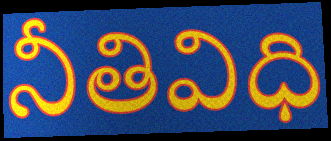
నీతివిధి